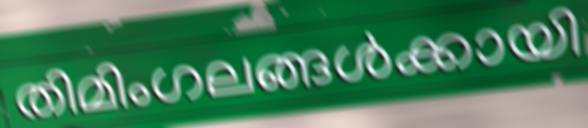
തിമിംഗലങ്ങൾക്കായി